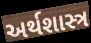
અર્થશાસ્ત્ર